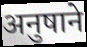
अनुषाने